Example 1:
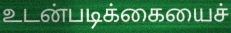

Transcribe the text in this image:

உடன்படிக்கையைச்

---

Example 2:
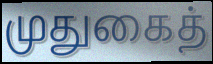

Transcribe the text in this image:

முதுகைத்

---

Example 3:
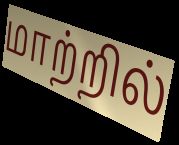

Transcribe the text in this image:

மாற்றில்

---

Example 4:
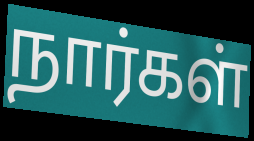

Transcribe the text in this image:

நார்கள்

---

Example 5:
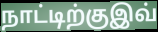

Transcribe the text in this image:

நாட்டிற்குஇவ்